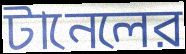
টানেলের